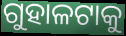
ଗୁହାଳଟାକୁ